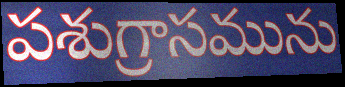
పశుగ్రాసమును